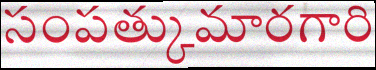
సంపత్కుమారగారి